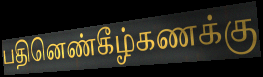
பதினெண்கீழ்கணக்கு